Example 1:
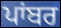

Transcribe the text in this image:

ਪਾਂਬਰ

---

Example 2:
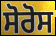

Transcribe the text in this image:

ਸੋਰੋਸ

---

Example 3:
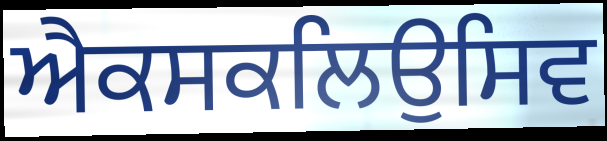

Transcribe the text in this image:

ਐਕਸਕਲਿਉਸਿਵ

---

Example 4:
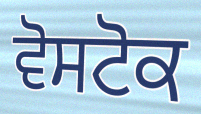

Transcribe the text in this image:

ਵੋਸਟੋਕ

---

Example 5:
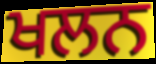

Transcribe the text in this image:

ਖਲਨ